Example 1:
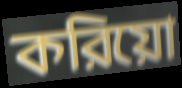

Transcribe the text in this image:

করিয়ো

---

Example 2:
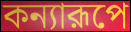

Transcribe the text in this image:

কন্যারূপে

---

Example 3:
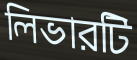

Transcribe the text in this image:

লিভারটি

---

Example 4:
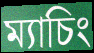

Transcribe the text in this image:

ম্যাচিং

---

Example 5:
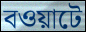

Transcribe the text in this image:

বওয়াটে